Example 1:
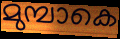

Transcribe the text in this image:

മുമ്പാകെ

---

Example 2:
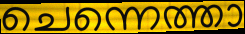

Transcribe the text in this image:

ചെന്നെത്താ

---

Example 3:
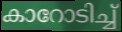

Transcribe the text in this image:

കാറോടിച്ച്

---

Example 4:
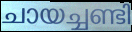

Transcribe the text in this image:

ചായച്ചണ്ടി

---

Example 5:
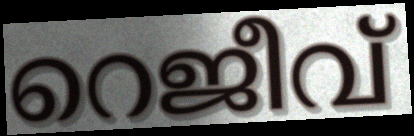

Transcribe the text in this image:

റെജീവ്